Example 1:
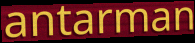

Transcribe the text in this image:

antarman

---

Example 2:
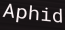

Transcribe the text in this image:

Aphid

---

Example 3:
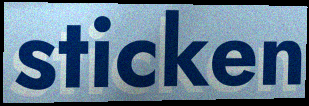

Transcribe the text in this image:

sticken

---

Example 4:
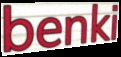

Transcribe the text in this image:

benki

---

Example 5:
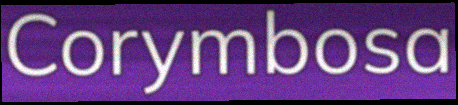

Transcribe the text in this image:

Corymbosa